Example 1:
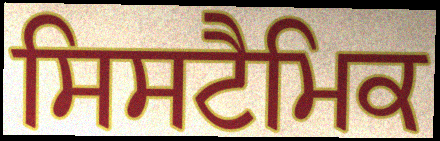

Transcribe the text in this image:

ਸਿਸਟੈਮਿਕ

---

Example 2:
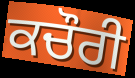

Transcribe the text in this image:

ਕਚੌਰੀ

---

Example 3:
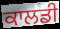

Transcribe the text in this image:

ਕਾਲਡੀ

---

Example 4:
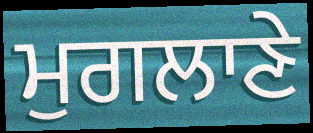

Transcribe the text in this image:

ਮੁਗਲਾਣੇ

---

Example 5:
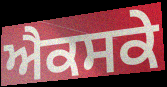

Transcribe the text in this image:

ਐਕਸਕੇ